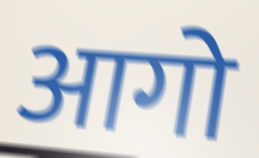
आगो